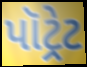
પૉટ્રેટ